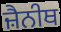
ਜ਼ੈਨੀਥ